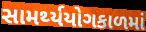
સામર્થ્યયોગકાળમાં